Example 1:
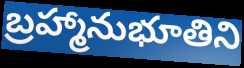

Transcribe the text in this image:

బ్రహ్మానుభూతిని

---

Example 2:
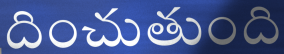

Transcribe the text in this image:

దించుతుంది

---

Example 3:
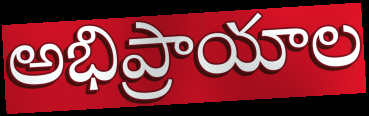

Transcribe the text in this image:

అభిప్రాయాల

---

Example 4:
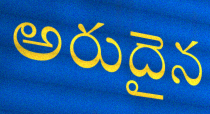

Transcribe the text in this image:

అరుదైన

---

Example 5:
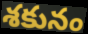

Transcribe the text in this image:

శకునం